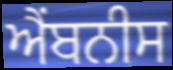
ਐਂਬਨੀਸ